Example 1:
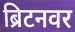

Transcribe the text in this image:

ब्रिटनवर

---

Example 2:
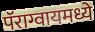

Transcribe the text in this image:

पॅराग्वायमध्ये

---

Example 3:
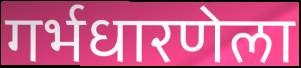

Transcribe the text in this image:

गर्भधारणेला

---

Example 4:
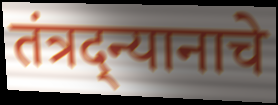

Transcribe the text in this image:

तंत्रद्न्यानाचे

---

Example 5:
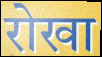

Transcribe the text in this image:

रोखा